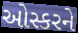
ઓસ્કરને